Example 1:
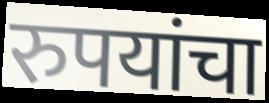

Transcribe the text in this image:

रुपयांचा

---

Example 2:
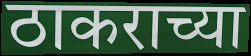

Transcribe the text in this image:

ठाकराच्या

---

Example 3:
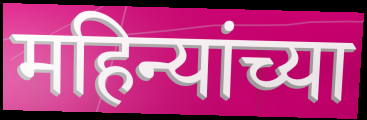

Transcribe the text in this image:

महिन्यांच्या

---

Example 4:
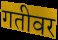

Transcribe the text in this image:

गतीवर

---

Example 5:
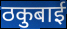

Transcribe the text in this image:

ठकुबाई